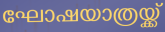
ഘോഷയാത്രയ്ക്ക്